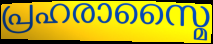
പ്രഹരാസ്മൈ